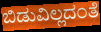
ಬಿಡುವಿಲ್ಲದಂತೆ